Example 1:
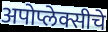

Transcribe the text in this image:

अपोप्लेक्सीचे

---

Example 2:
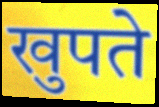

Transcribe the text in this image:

खुपते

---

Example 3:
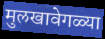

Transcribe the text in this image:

मुलखावेगळ्या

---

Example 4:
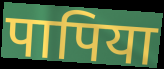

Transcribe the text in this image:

पापिया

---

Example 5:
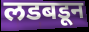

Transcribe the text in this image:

लडबडून